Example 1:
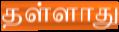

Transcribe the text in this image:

தள்ளாது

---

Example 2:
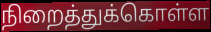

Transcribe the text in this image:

நிறைத்துக்கொள்ள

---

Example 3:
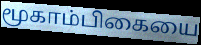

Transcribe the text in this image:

மூகாம்பிகையை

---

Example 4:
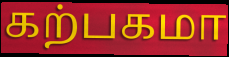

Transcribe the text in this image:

கற்பகமா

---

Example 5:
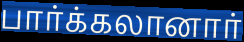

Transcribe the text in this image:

பார்க்கலானார்